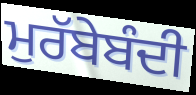
ਮੁਰੱਬੇਬੰਦੀ